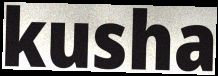
kusha